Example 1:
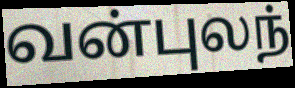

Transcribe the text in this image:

வன்புலந்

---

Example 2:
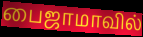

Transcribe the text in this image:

பைஜாமாவில்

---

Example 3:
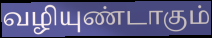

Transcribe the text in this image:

வழியுண்டாகும்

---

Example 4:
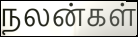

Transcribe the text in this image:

நலன்கள்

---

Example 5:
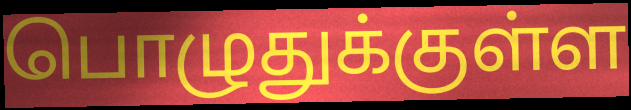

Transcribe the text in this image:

பொழுதுக்குள்ள